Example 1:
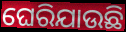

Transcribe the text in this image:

ଘେରିଯାଉଛି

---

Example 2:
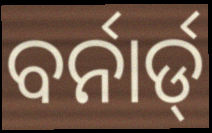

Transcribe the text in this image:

ବର୍ନାର୍ଡ୍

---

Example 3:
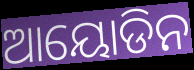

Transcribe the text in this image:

ଆୟୋଡିନ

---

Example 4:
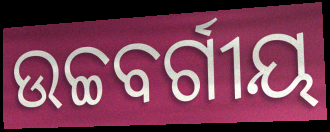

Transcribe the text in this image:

ଉଚ୍ଚବର୍ଗୀୟ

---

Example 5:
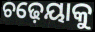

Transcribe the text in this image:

ଚଢ଼େୟାକୁ